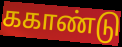
ககாண்டு